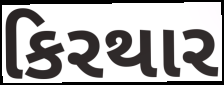
કિરથાર